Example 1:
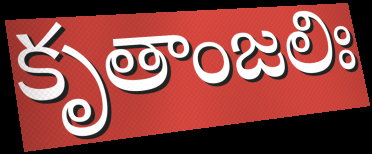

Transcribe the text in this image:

కృతాంజలిః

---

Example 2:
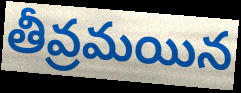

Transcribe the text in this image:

తీవ్రమయిన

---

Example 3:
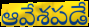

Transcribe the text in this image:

ఆవేశపడే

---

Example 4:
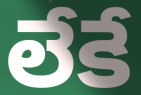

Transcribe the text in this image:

లేకే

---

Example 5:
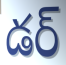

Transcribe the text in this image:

డర్